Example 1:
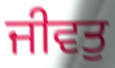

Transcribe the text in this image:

ਜੀਵਤੁ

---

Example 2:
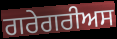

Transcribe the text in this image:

ਗਰੇਗਰੀਅਸ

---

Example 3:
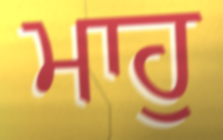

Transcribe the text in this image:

ਮਾਹੁ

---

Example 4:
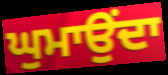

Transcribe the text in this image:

ਘੁਮਾਉਂਦਾ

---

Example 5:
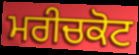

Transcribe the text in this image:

ਮਰੀਚਕੋਟ